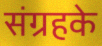
संग्रहके